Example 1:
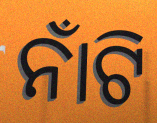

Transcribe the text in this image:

ନାଁଟି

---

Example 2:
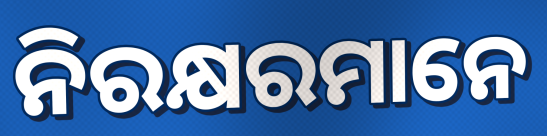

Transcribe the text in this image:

ନିରକ୍ଷରମାନେ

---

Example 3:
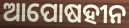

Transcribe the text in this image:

ଆପୋଷହୀନ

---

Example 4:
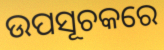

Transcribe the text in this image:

ଉପସୂଚକରେ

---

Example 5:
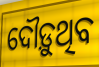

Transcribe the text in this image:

ଦୌଡ଼ୁଥିବ